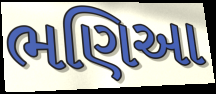
ભણિઆ